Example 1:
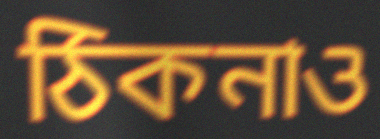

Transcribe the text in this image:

ঠিকনাও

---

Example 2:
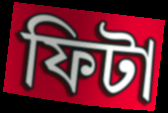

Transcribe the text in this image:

ফিটা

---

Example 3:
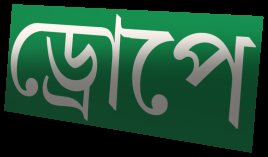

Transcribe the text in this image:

ড্ৰোপে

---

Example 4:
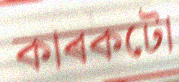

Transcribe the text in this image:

কাৰকটো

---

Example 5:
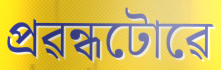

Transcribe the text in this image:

প্ৰৱন্ধটোৱে